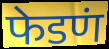
फेडणं